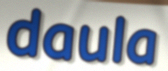
daula